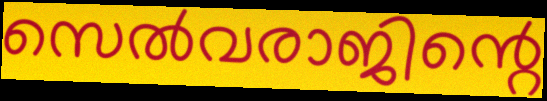
സെൽവരാജിന്റെ